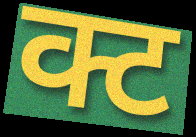
क्ट